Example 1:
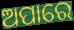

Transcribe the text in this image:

ଅପାରେ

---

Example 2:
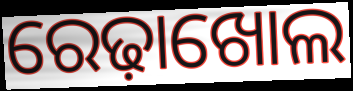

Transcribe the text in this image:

ରେଢ଼ାଖୋଲ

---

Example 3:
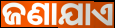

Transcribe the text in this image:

ଜଣାଯାଏ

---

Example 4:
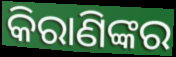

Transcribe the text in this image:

କିରାଣିଙ୍କର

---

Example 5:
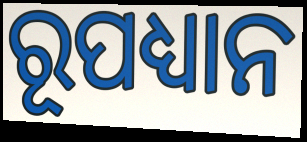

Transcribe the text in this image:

ରୂପଧ୍ୟାନ